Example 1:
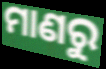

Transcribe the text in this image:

ମାଣରୁ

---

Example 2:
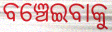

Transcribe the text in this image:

ବଞ୍ଚେଇବାକୁ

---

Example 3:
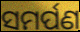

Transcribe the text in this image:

ସମର୍ପଣ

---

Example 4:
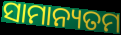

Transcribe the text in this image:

ସାମାନ୍ୟତମ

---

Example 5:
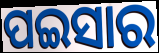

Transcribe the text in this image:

ପଇସାର